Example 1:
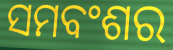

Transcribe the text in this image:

ସମବଂଶର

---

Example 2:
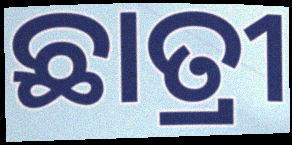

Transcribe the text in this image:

ଛାତ୍ରୀ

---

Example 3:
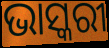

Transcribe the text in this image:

ଭାସ୍କରୀ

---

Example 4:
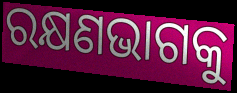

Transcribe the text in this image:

ରକ୍ଷଣଭାଗକୁ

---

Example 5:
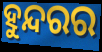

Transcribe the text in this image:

ହୁନ୍ଦରର